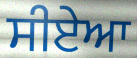
ਸੀਏਆ